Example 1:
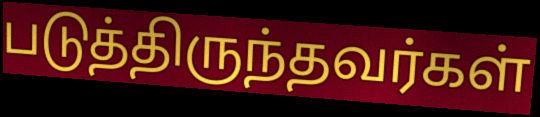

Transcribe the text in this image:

படுத்திருந்தவர்கள்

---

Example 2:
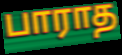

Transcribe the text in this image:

பாராத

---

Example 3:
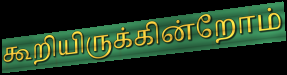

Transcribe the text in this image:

கூறியிருக்கின்றோம்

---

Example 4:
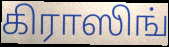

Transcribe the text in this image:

கிராஸிங்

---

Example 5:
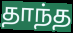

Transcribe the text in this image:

தாந்த